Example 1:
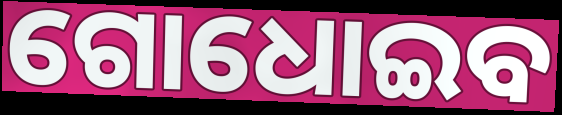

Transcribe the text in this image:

ଗୋଧୋଇବ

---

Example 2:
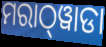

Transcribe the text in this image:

ମରାଠ୍‌ୱାଡା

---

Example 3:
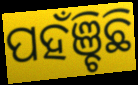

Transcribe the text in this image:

ପହଁଞ୍ଚିଛି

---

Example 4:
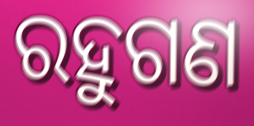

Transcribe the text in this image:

ରହୁଗଣ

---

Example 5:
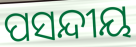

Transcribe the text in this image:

ପସନ୍ଦୀୟ